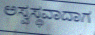
ಅಸ್ವಸ್ಥವಾದಾಗ